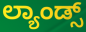
ಲ್ಯಾಂಡ್ಸ್